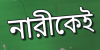
নারীকেই